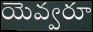
యెవ్వరూ